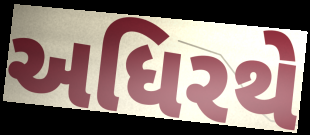
અધિરથે